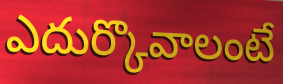
ఎదుర్కొవాలంటే